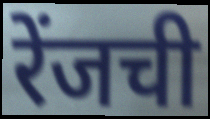
रेंजची